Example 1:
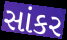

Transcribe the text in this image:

સાંકર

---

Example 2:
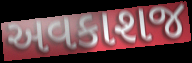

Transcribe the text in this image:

અવકાશજ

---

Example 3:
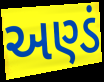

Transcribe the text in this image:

અણ્ડં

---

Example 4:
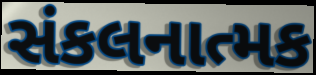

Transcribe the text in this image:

સંકલનાત્મક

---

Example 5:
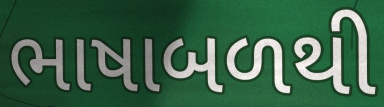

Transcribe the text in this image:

ભાષાબળથી